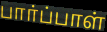
பார்ப்பாள்